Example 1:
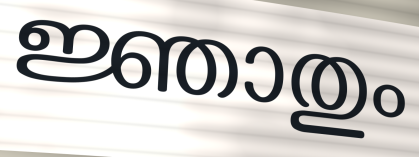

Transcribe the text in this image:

ജ്ഞാതും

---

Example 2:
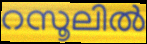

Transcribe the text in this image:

റസൂലിൽ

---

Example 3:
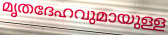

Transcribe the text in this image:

മൃതദേഹവുമായുള്ള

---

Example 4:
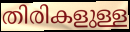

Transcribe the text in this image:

തിരികളുള്ള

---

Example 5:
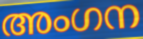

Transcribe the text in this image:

അംഗന